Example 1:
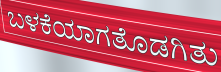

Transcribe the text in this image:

ಬಳಕೆಯಾಗತೊಡಗಿತು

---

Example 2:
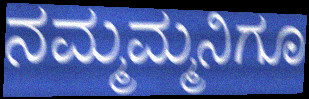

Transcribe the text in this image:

ನಮ್ಮಮ್ಮನಿಗೂ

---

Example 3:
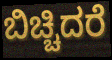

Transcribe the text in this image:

ಬಿಚ್ಚಿದರೆ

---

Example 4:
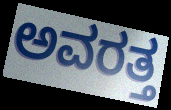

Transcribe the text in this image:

ಅವರತ್ತ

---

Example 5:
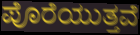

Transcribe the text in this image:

ಪೊರೆಯುತ್ತವೆ